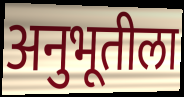
अनुभूतीला